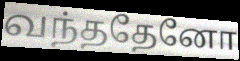
வந்ததேனோ